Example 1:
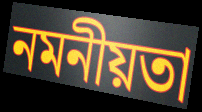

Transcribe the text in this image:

নমনীয়তা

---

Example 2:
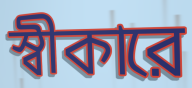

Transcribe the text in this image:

স্বীকারে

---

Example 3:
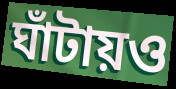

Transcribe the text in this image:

ঘাঁটায়ও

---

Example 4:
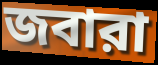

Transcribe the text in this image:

জবারা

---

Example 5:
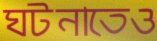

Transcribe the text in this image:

ঘটনাতেও